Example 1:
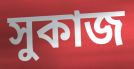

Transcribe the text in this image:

সুকাজ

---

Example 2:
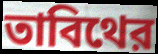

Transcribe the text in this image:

তাবিথের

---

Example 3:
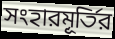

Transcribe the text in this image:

সংহারমূর্তির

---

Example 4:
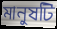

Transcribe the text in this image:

মানুষটি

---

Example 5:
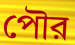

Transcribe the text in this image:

পৌর